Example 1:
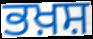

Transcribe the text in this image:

ਭਖ਼ਸ਼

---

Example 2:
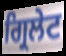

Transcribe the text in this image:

ਗ੍ਰਿਲੇਟ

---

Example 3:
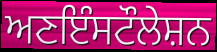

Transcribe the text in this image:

ਅਣਇੰਸਟੌਲੇਸ਼ਨ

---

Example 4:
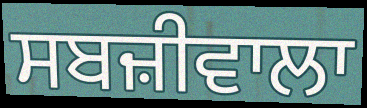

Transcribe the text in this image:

ਸਬਜ਼ੀਵਾਲਾ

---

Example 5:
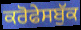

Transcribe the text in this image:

ਕਰੋਫੇਸਬੁੱਕ